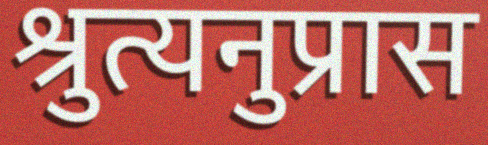
श्रुत्यनुप्रास